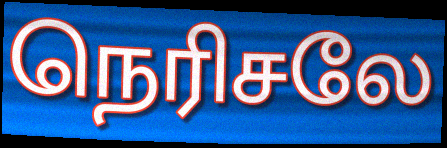
நெரிசலே